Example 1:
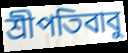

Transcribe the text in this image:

শ্রীপতিবাবু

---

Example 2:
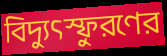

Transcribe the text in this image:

বিদ্যুৎস্ফুরণের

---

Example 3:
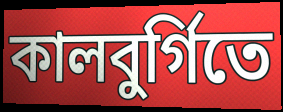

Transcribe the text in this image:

কালবুর্গিতে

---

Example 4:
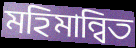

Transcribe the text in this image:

মহিমান্বিত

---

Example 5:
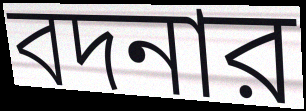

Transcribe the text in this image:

বদনার